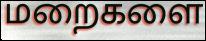
மறைகளை